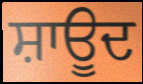
ਸ਼ਾਊਦ